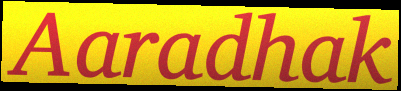
Aaradhak